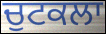
ਚੁਟਕਲਾ